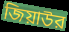
জিয়াউর